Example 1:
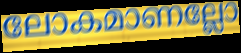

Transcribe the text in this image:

ലോകമാണല്ലോ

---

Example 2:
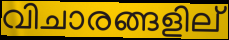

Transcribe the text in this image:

വിചാരങ്ങളില്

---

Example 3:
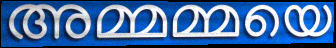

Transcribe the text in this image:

അമ്മമ്മയെ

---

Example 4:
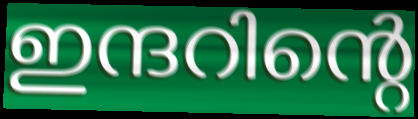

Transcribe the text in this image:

ഇന്ദറിന്റെ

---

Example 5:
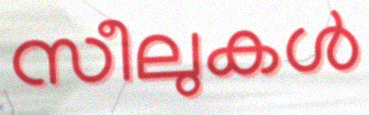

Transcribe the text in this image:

സീലുകൾ